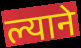
ल्याने